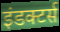
इंडक्टर्स